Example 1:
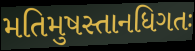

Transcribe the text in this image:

મતિમુષસ્તાનધિગતઃ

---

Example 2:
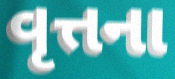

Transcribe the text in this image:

વૃત્તના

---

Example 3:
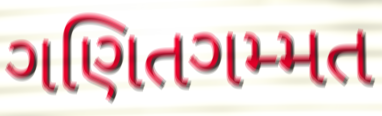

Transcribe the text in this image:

ગણિતગમ્મત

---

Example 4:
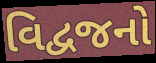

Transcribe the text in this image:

વિદ્વજનો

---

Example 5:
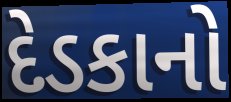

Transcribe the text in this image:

દેડકાનો